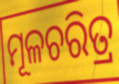
ମୂଳଚରିତ୍ର